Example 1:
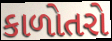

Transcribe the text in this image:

કાળોતરો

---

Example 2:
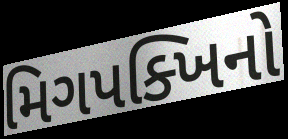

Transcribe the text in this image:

મિગપક્ખિનો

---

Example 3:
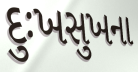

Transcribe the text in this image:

દુઃખસુખના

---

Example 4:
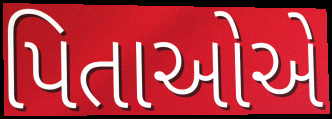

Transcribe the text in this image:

પિતાઓએ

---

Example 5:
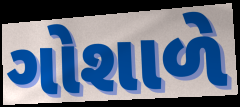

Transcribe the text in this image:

ગોશાળે